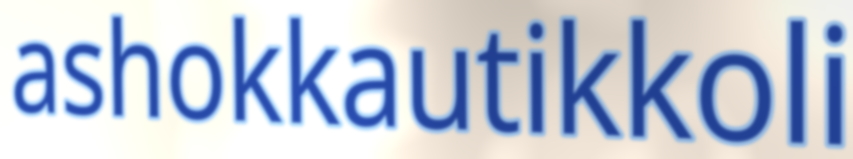
ashokkautikkoli